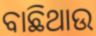
ବାଛିଥାଉ